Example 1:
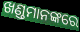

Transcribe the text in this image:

ଖଣ୍ଡମାନଙ୍କରେ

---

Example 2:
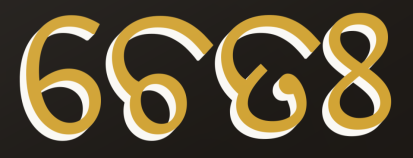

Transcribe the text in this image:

ଚେତଃ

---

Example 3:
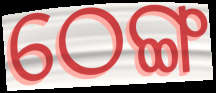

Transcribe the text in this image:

ଠେଙ୍ଗ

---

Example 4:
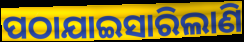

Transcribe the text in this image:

ପଠାଯାଇସାରିଲାଣି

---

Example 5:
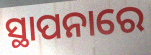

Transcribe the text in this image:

ସ୍ଥାପନାରେ